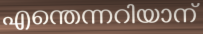
എന്തെന്നറിയാന്